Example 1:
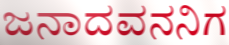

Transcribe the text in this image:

ಜನಾದವನನಿಗ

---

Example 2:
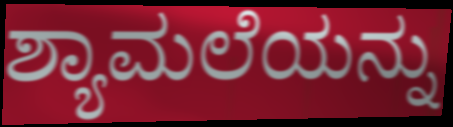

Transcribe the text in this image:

ಶ್ಯಾಮಲೆಯನ್ನು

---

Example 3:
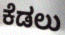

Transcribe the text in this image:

ಕೆಡಲು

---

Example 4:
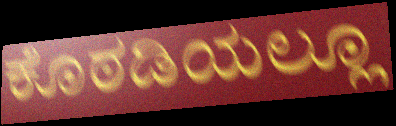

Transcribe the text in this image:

ಕೊಠಡಿಯಲ್ಲೂ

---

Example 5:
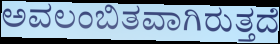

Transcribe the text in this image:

ಅವಲಂಬಿತವಾಗಿರುತ್ತದೆ